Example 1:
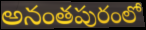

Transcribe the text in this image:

అనంతపురంలో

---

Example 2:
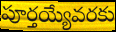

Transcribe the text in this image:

పూర్తయ్యేవరకు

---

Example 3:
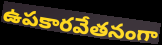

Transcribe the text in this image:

ఉపకారవేతనంగా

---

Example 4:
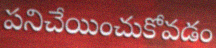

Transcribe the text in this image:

పనిచేయించుకోవడం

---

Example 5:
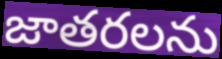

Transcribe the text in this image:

జాతరలను